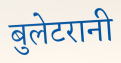
बुलेटरानी